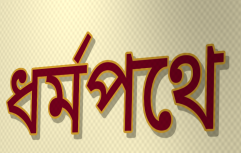
ধর্মপথে